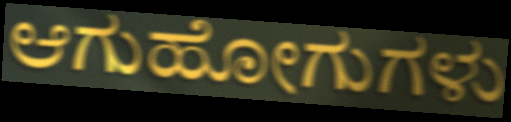
ಆಗುಹೋಗುಗಳು